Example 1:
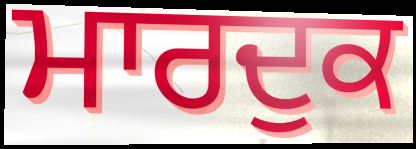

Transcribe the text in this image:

ਮਾਰਦੁਕ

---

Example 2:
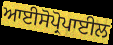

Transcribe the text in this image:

ਆਈਸੋਪ੍ਰੋਪਾਈਲ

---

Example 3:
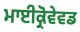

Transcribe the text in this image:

ਮਾਈਕ੍ਰੋਵੇਵਡ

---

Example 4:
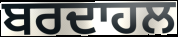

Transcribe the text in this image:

ਬਰਦਾਹਲ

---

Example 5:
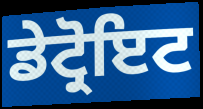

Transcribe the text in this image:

ਡੇਟ੍ਰੋਇਟ